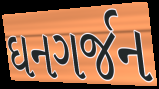
ઘનગર્જન